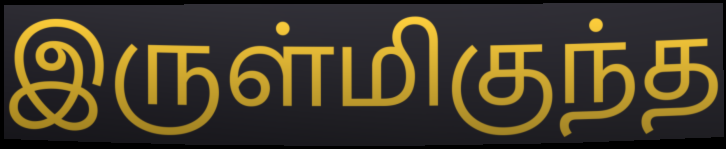
இருள்மிகுந்த